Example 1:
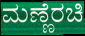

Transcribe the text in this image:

ಮಣ್ಣೆರಚಿ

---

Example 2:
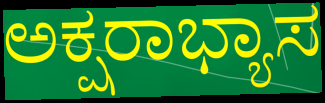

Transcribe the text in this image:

ಅಕ್ಷರಾಭ್ಯಾಸ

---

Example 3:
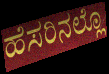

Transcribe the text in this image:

ಹೆಸರಿನಲ್ಲೊ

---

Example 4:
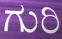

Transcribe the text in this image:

ಗುರಿ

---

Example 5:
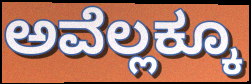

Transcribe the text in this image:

ಅವೆಲ್ಲಕ್ಕೂ